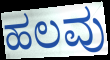
ಹಲವು